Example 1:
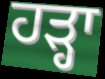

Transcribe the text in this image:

ਹੜ੍ਹਾ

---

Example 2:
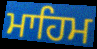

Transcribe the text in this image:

ਮਾਹਿਮ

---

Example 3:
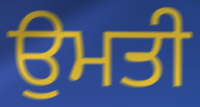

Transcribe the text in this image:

ਉਮਤੀ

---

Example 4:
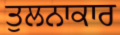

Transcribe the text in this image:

ਤੁਲਨਾਕਾਰ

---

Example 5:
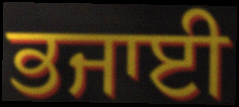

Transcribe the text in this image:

ਭਜਾਈ